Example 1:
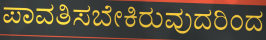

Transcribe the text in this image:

ಪಾವತಿಸಬೇಕಿರುವುದರಿಂದ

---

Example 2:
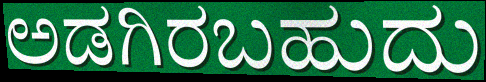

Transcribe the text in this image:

ಅಡಗಿರಬಹುದು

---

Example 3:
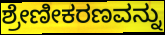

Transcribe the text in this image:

ಶ್ರೇಣೀಕರಣವನ್ನು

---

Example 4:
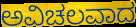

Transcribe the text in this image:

ಅವಿಚಲವಾದ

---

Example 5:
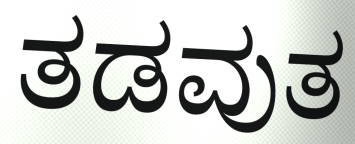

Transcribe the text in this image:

ತಡವುತ